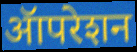
ॲापरेशन